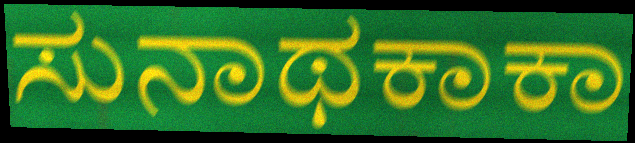
ಸುನಾಥಕಾಕಾ